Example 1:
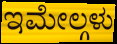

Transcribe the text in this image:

ಇಮೇಲ್ಗಳು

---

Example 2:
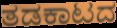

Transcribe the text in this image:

ತಡಕಾಟದ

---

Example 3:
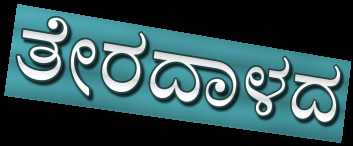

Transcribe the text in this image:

ತೇರದಾಳದ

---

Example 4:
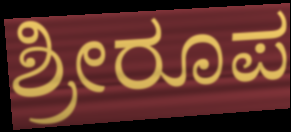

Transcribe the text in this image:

ಶ್ರೀರೂಪ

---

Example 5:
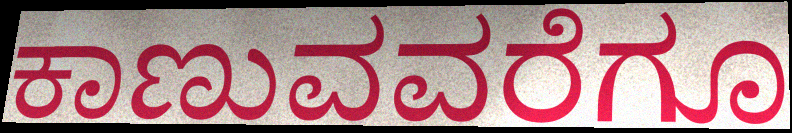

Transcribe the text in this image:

ಕಾಣುವವರೆಗೂ